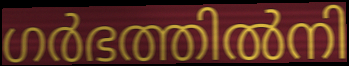
ഗർഭത്തിൽനി